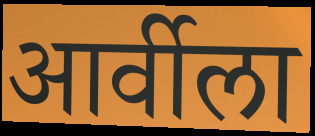
आर्वीला